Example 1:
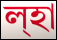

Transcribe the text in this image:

ল্হা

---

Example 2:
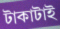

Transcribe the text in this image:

টাকাটাই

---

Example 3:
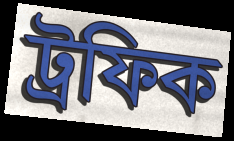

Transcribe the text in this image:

ট্রফিক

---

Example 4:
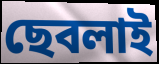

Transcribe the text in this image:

ছেবলাই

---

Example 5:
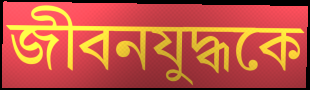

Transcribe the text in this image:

জীবনযুদ্ধকে